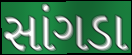
સાંગડા